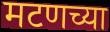
मटणच्या